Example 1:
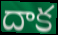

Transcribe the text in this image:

దాక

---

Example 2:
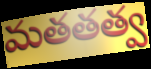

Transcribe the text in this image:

మతతత్వ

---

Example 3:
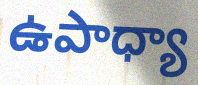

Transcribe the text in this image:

ఉపాధ్యా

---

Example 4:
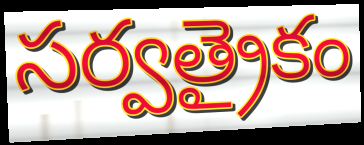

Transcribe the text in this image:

సర్వత్రైకం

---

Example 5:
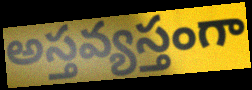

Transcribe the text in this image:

అస్తవ్యస్తంగా